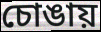
চোঙায়